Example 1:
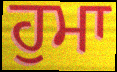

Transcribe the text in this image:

ਹੁਮਾ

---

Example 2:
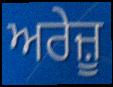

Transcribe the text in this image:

ਅਰੇਜ਼ੂ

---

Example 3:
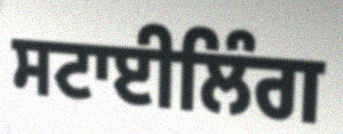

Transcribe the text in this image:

ਸਟਾਈਲਿੰਗ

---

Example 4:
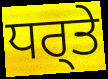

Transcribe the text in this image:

ਧਰ੍ਤੇ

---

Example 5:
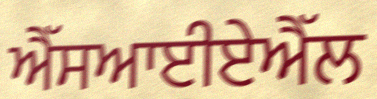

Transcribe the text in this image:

ਐੱਸਆਈਏਐੱਲ